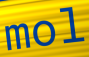
mol